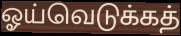
ஓய்வெடுக்கத்